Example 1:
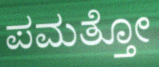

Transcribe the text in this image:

ಪಮತ್ತೋ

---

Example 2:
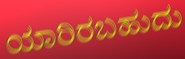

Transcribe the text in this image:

ಯಾರಿರಬಹುದು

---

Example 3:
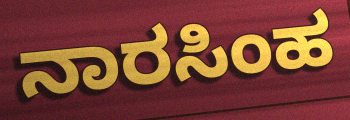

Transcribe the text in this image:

ನಾರಸಿಂಹ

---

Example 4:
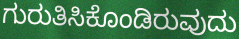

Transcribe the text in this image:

ಗುರುತಿಸಿಕೊಂಡಿರುವುದು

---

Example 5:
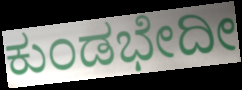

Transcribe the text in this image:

ಕುಂಡಭೇದೀ